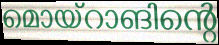
മൊയ്റാങിന്റെ